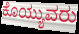
ಕೊಯ್ಯುವರು